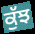
ਕੁੱਝ